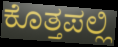
ಕೊತ್ತಪಲ್ಲಿ